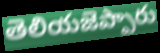
తెలియజెప్పారు